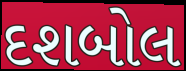
દશબોલ